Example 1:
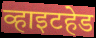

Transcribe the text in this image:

व्हाइटहेड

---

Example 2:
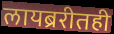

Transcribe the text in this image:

लायब्ररीतही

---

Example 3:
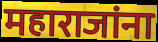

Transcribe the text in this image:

महाराजांना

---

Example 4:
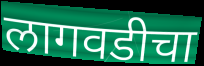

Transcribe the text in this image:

लागवडीचा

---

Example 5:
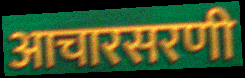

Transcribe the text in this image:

आचारसरणी